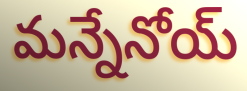
మన్నేనోయ్